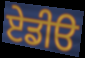
ਏਡੀੳ